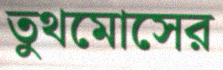
তুথমোসের